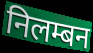
निलम्‍बन